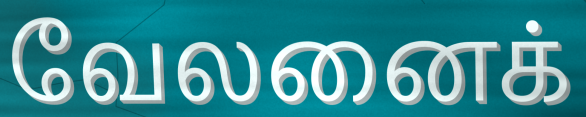
வேலனைக்